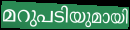
മറുപടിയുമായി